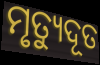
ମୃତ୍ୟୁଦୂତ